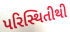
પરિસ્થિતીથી